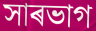
সাৰভাগ